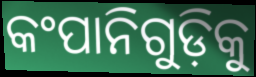
କଂପାନିଗୁଡ଼ିକୁ